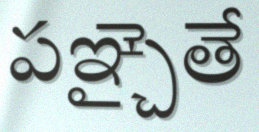
పఞ్చైతే